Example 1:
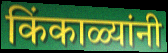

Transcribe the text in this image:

किंकाळ्यांनी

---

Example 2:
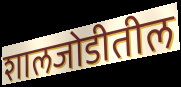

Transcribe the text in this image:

शालजोडीतील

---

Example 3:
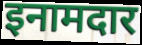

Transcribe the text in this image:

इनामदार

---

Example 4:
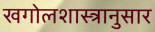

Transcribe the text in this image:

खगोलशास्त्रानुसार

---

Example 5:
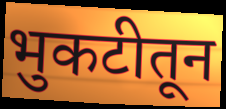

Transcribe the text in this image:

भुकटीतून